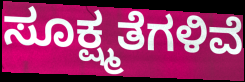
ಸೂಕ್ಷ್ಮತೆಗಳಿವೆ